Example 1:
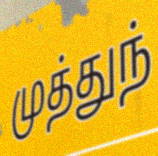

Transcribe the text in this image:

முத்துந்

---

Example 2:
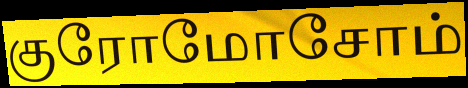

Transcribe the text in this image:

குரோமோசோம்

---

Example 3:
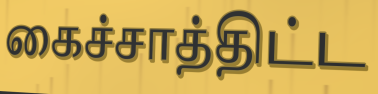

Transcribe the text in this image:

கைச்சாத்திட்ட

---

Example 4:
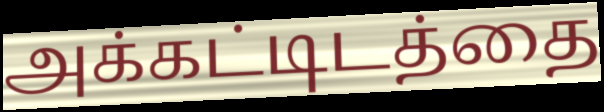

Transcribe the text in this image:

அக்கட்டிடத்தை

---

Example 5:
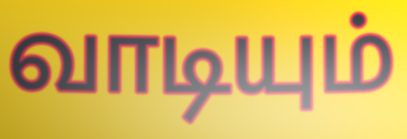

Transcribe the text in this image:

வாடியும்